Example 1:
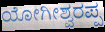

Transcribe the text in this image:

ಯೋಗೀಶ್ವರಪ್ಪ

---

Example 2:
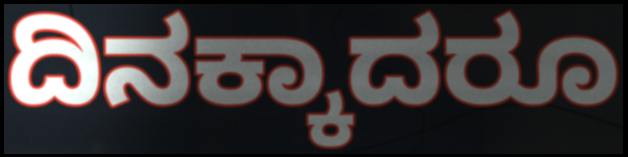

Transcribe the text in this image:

ದಿನಕ್ಕಾದರೂ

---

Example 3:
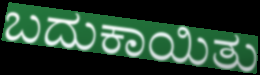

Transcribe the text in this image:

ಬದುಕಾಯಿತು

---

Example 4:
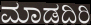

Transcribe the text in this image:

ಮಾಡದಿರಿ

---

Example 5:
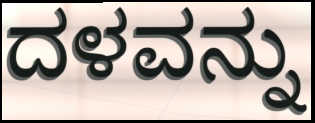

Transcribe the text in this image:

ದಳವನ್ನು